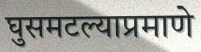
घुसमटल्याप्रमाणे